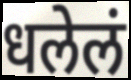
धलेलं